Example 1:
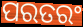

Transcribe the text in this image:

ପରତରଂ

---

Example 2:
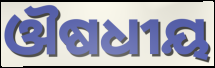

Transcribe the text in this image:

ଔଷଧୀୟ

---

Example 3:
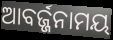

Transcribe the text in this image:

ଆବର୍ଜ୍ଜନାମୟ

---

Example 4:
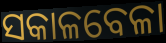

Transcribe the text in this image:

ସକାଳବେଳା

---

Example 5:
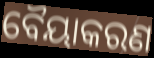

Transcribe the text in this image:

ବୈୟାକରଣ